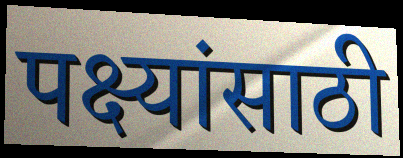
पक्ष्यांसाठी